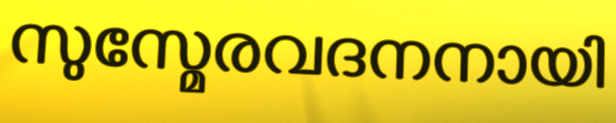
സുസ്മേരവദനനായി